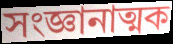
সংজ্ঞানাত্মক